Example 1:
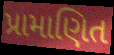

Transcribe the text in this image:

પ્રામાણિત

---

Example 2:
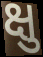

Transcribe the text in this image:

ક્ષુ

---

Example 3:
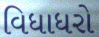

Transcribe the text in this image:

વિધાધરો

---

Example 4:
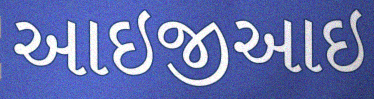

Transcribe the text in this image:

આઇજીઆઇ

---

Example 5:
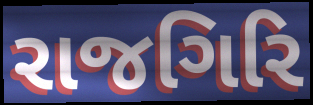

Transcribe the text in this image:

રાજગિરિ